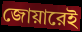
জোয়ারেই